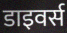
डाइवर्स